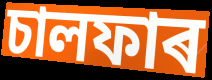
চালফাৰ